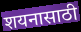
शयनासाठी